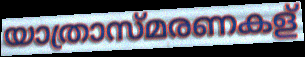
യാത്രാസ്മരണകള്